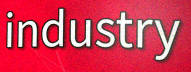
industry